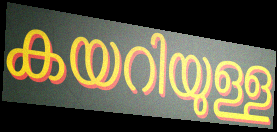
കയറിയുള്ള